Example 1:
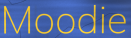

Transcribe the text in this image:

Moodie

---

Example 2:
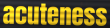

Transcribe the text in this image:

acuteness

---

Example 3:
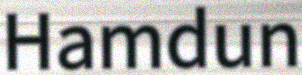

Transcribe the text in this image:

Hamdun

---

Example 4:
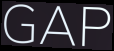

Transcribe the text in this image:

GAP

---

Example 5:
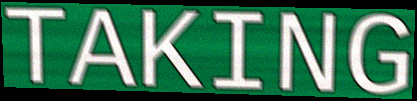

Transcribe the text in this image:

TAKING